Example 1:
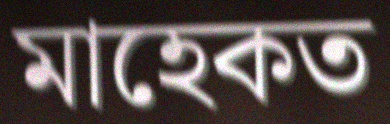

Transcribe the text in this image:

মাহেকত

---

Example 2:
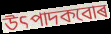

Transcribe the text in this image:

উৎপাদকবোৰ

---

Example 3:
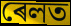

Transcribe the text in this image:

ৰেলত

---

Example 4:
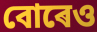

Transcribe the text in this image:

বোৰেও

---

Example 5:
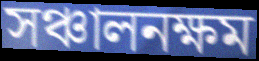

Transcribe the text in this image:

সঞ্চালনক্ষম